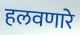
हलवणारे